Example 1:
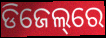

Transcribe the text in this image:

ଡିଜେଲ୍‌ରେ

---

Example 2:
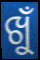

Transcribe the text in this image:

ଖୁଁ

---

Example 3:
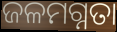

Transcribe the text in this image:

ଜଳମଗ୍ନତା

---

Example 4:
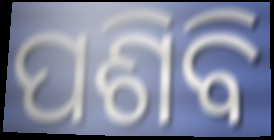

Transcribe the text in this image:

ପଶିବି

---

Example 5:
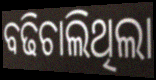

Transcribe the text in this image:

ବଢିଚାଲିଥିଲା